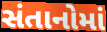
સંતાનોમાં